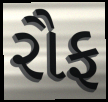
રૌફ